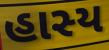
હાસ્ય